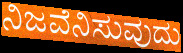
ನಿಜವೆನಿಸುವುದು